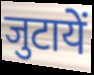
जुटायें